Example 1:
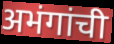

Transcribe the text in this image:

अभंगांची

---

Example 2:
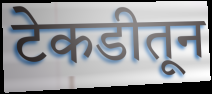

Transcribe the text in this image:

टेकडीतून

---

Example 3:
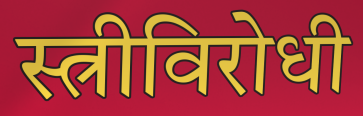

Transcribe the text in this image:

स्त्रीविरोधी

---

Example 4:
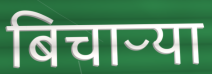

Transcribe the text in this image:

बिचाऱ्या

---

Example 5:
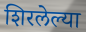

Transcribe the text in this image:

शिरलेल्या